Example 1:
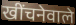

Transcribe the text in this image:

खींचनेवाले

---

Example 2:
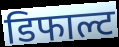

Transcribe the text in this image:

डिफाल्ट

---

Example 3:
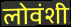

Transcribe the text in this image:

लोवंशी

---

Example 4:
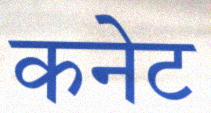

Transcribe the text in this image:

कनेट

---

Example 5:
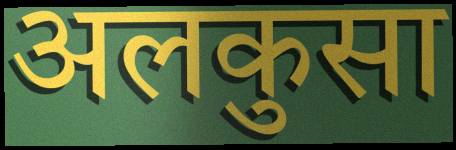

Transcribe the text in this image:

अलकुसा